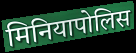
मिनियापोलिस